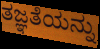
ತಜ್ಞತೆಯನ್ನು